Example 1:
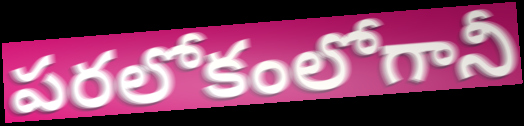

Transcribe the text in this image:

పరలోకంలోగానీ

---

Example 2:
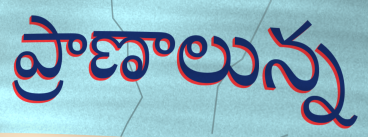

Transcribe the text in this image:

ప్రాణాలున్న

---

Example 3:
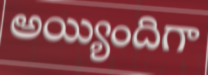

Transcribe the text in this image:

అయ్యిందిగా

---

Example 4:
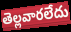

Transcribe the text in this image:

తెల్లవారలేదు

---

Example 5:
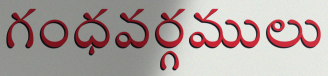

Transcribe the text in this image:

గంధవర్గములు